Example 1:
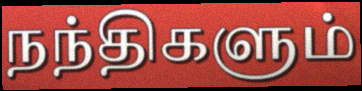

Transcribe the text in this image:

நந்திகளும்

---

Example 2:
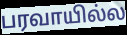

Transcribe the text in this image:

பரவாயில்ல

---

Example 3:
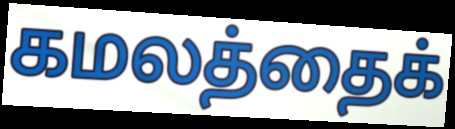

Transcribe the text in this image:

கமலத்தைக்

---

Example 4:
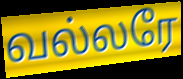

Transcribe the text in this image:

வல்லரே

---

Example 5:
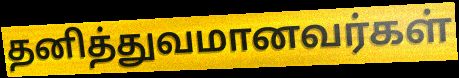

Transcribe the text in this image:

தனித்துவமானவர்கள்